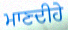
ਮਾਣਦੀਹੇ